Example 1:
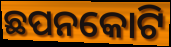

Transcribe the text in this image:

ଛପନକୋଟି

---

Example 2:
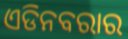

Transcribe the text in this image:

ଏଡିନବରାର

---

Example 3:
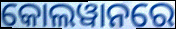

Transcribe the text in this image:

କୋଲୱାନରେ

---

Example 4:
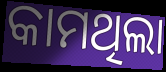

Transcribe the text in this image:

କାମଥିଲା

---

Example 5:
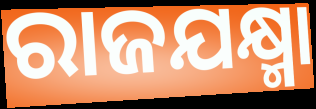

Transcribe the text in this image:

ରାଜଯକ୍ଷ୍ମା